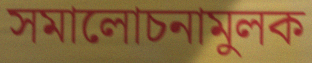
সমালোচনামুলক